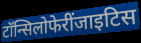
टॉन्सिलोफेरींजाइटिस